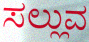
ಸಲ್ಲುವ